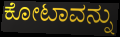
ಕೋಟಾವನ್ನು